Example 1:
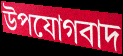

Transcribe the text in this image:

উপযোগবাদ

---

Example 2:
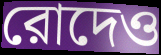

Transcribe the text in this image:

রোদেও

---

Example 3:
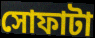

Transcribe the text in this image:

সোফাটা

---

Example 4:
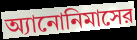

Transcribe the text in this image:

অ্যানোনিমাসের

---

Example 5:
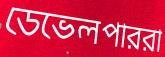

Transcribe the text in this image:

ডেভেলপাররা